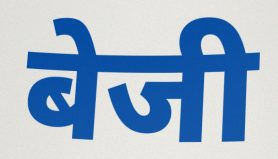
बेजी